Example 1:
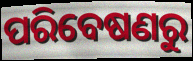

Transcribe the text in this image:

ପରିବେଷଣରୁ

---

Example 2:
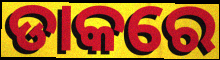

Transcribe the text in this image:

ଡାକରେ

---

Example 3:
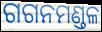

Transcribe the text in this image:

ଗଗନମଣ୍ଡଳ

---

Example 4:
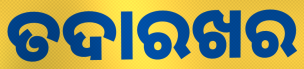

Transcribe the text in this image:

ତଦାରଖର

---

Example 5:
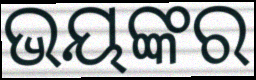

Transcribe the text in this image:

ଭୟଙ୍କର